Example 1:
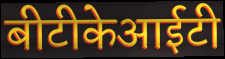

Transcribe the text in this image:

बीटीकेआईटी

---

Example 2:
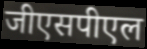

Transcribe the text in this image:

जीएसपीएल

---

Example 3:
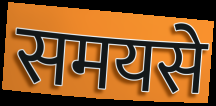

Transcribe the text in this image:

समयसे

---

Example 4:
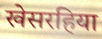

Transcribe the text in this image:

खेसरहिया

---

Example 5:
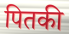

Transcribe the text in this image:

पितकी